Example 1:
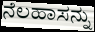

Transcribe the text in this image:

ನೆಲಹಾಸನ್ನು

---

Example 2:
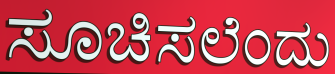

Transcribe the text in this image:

ಸೂಚಿಸಲೆಂದು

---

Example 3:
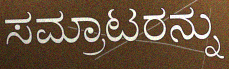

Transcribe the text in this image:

ಸಮ್ರಾಟರನ್ನು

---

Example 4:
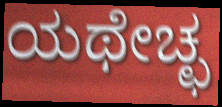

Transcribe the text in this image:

ಯಥೇಚ್ಛ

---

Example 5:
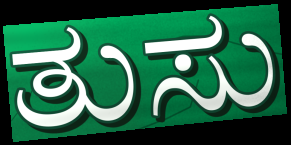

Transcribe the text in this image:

ತುಸು